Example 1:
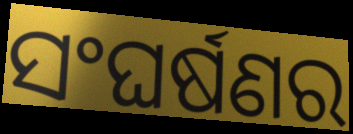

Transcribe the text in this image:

ସଂଘର୍ଷଣର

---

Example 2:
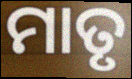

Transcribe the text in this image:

ମାତୃ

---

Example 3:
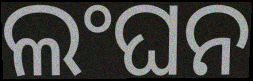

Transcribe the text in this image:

ଲଂଘନ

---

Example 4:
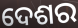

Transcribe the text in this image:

ଦେଶର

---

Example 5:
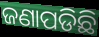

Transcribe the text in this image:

ଜଣାପଡିଛି